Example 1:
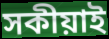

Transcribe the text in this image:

সকীয়াই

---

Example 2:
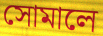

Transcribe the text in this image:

সোমালে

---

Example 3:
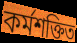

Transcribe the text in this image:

কৰ্মশক্তিত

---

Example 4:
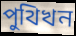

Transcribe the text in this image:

পুথিখন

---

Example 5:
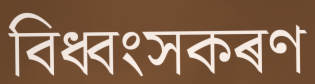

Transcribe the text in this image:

বিধ্বংসকৰণ